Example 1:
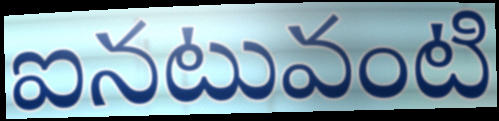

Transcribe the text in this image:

ఐనటువంటి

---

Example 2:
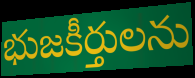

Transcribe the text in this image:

భుజకీర్తులను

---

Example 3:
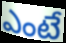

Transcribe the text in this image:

ఎంటే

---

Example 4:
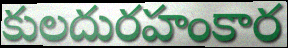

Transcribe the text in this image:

కులదురహంకార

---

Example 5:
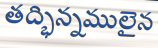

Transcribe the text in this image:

తద్భిన్నములైన